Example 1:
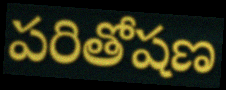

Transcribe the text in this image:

పరితోషణ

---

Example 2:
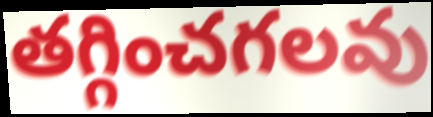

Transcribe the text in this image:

తగ్గించగలవు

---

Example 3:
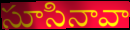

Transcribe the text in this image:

సూసినావా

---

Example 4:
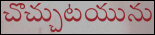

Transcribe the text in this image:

చొచ్చుటయును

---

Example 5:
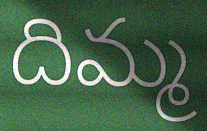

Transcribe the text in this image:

దిమ్మ